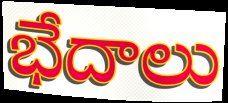
భేదాలు